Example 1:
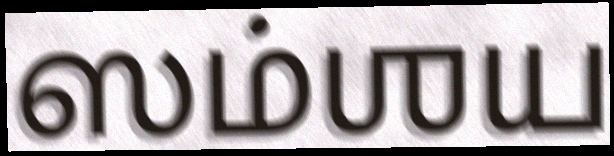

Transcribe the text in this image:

ஸம்ஶய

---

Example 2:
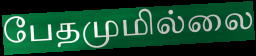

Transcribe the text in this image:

பேதமுமில்லை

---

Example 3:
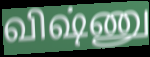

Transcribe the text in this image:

விஷ்ணு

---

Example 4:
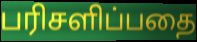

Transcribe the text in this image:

பரிசளிப்பதை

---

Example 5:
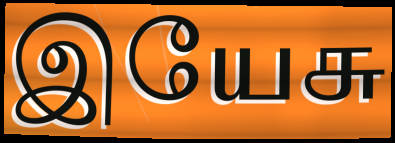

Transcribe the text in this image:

இயேசு